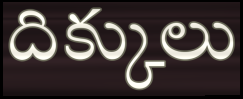
దిక్కులు